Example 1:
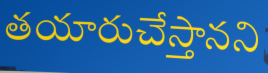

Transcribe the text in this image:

తయారుచేస్తానని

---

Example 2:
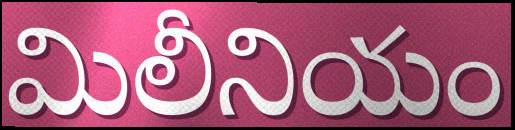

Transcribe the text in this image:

మిలీనియం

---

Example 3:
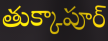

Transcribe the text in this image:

తుక్కాపూర్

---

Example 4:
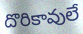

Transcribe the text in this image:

దొరికావులే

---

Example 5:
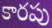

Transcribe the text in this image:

కారపు